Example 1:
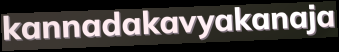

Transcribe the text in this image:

kannadakavyakanaja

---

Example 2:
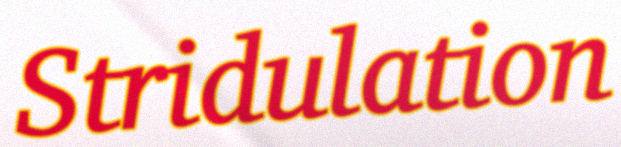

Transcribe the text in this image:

Stridulation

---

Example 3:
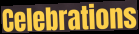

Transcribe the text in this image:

Celebrations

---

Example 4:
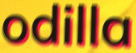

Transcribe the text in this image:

odilla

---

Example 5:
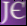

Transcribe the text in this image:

JE